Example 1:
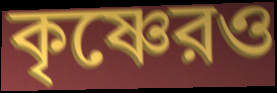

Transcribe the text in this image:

কৃষ্ণেরও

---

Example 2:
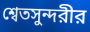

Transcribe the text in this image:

শ্বেতসুন্দরীর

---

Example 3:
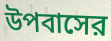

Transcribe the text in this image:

উপবাসের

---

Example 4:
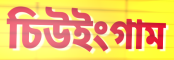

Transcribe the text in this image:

চিউইংগাম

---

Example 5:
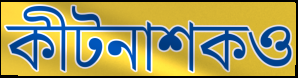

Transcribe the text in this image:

কীটনাশকও